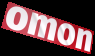
omon